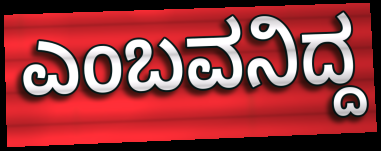
ಎಂಬವನಿದ್ದ